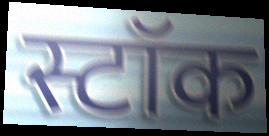
स्टॉक